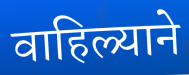
वाहिल्याने